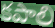
కపాలి